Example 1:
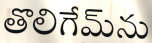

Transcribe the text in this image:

తొలిగేమ్‌ను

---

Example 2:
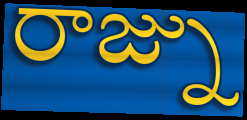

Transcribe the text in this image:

రాజ్ను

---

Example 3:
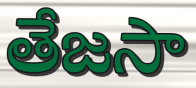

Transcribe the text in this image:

తేజసా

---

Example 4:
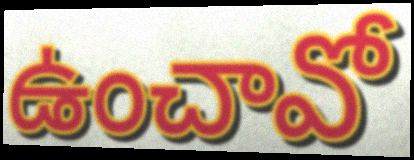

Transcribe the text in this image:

ఉంచావో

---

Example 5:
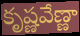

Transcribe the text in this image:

కృష్ణవేణ్ణా